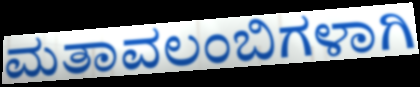
ಮತಾವಲಂಬಿಗಳಾಗಿ